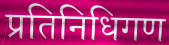
प्रतिनिधिगण